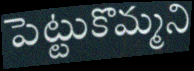
పెట్టుకొమ్మని